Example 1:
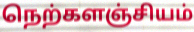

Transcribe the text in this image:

நெற்களஞ்சியம்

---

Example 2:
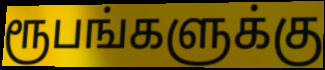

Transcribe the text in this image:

ரூபங்களுக்கு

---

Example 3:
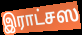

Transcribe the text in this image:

இராட்சஸ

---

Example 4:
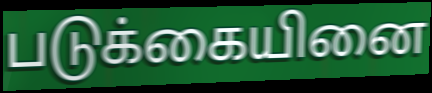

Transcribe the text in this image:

படுக்கையினை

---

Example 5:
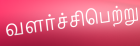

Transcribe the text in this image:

வளர்ச்சிபெற்று